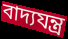
বাদ্যযন্ত্ৰ